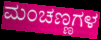
ಮಂಚಣ್ಣಗಳ